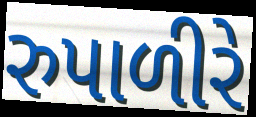
રુપાળીરે